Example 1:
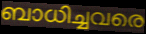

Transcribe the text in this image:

ബാധിച്ചവരെ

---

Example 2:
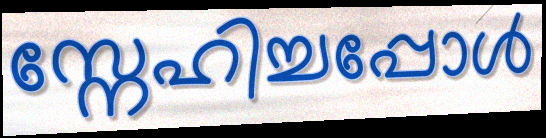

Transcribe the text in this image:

സ്നേഹിച്ചപ്പോൾ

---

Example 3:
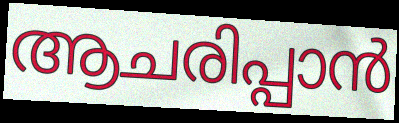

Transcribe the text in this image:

ആചരിപ്പാൻ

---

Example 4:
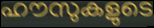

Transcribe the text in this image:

ഹൗസുകളുടെ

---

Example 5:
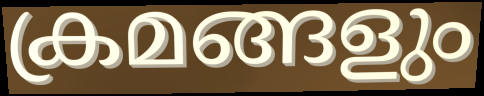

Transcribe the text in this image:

ക്രമങ്ങളും